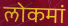
लोकमां